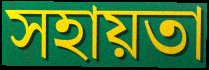
সহায়তা